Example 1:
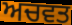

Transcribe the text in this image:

ਅਚਵਤ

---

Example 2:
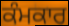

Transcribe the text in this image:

ਕੰਮਕਾਰ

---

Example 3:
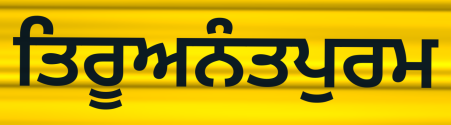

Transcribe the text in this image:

ਤਿਰੂਅਨੰਤਪੁਰਮ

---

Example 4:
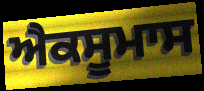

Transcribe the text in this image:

ਐਕਸੂਮਾਸ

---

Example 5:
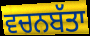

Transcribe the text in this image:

ਵਚਨਬੱਤਾ